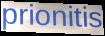
prionitis